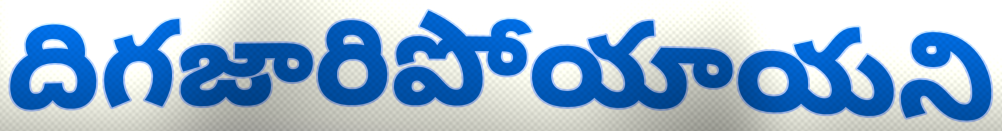
దిగజారిపోయాయని